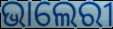
ଭାଲେରୀ